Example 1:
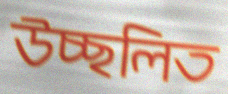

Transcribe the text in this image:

উচ্ছলিত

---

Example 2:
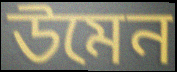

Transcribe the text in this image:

উমেন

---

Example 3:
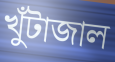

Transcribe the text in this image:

খুঁটাজাল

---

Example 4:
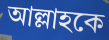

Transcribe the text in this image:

আল্লাহকে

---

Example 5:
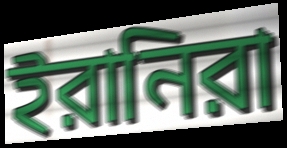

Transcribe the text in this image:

ইরানিরা